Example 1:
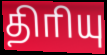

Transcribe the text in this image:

திரியு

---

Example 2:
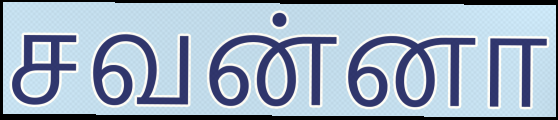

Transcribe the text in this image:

சவன்னா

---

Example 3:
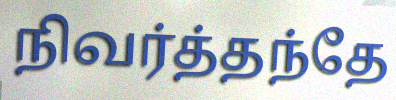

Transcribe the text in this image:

நிவர்த்தந்தே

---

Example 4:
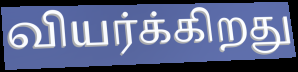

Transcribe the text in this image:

வியர்க்கிறது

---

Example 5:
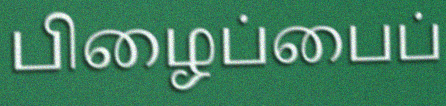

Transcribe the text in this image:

பிழைப்பைப்